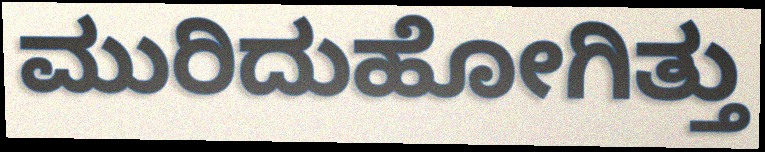
ಮುರಿದುಹೋಗಿತ್ತು